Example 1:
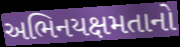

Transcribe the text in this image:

અભિનયક્ષમતાનો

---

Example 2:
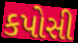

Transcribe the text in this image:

કપોસી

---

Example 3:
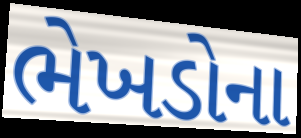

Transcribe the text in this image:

ભેખડોના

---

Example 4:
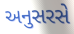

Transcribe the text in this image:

અનુસરસે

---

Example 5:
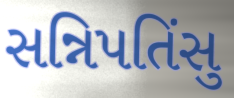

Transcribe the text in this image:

સન્નિપતિંસુ